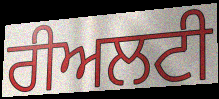
ਰੀਅਲਟੀ